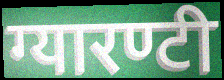
ग्यारण्टी